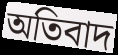
অতিবাদ